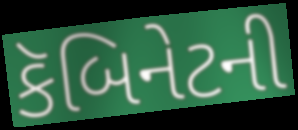
કૅબિનેટની